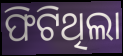
ଫିଟିଥିଲା